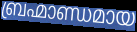
ബ്രഹ്മാണ്ഡമായ